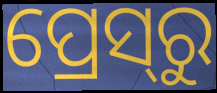
ପ୍ରେସ୍‍ରୁ